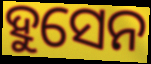
ହୁସେନ